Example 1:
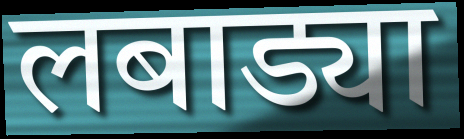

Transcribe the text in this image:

लबाड्या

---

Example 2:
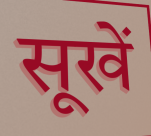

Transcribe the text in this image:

सूखें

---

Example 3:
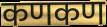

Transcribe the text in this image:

कणकण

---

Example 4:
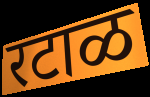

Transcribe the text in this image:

रटाळ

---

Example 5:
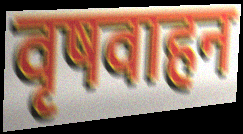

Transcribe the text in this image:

वृषवाहन